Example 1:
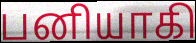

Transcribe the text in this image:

பனியாகி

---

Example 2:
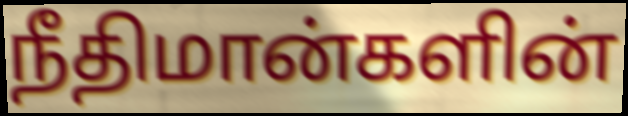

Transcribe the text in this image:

நீதிமான்களின்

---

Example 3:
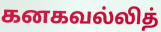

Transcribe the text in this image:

கனகவல்லித்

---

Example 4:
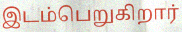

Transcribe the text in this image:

இடம்பெறுகிறார்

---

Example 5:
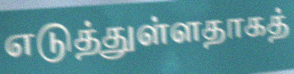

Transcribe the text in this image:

எடுத்துள்ளதாகத்